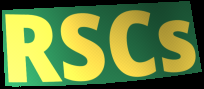
RSCs